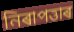
নিৰাপত্তাৰ